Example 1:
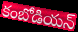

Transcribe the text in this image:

కంబోడియన్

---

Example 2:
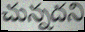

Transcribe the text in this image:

చున్నదని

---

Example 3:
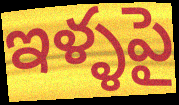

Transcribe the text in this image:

ఇళ్ళపై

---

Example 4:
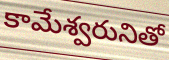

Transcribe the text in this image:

కామేశ్వరునితో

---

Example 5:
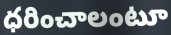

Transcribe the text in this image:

ధరించాలంటూ